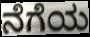
ನೆಗೆಯ